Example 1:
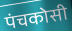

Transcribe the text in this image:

पंचकोसी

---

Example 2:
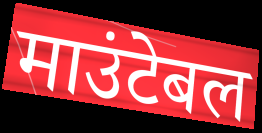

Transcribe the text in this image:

माउंटेबल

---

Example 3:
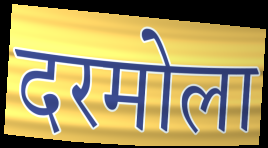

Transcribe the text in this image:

दरमोला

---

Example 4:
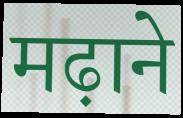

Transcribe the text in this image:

मढ़ाने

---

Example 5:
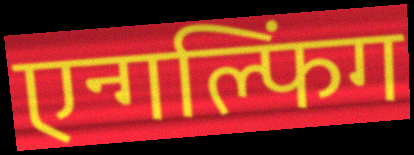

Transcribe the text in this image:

एन्गल्फिंग